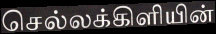
செல்லக்கிளியின்